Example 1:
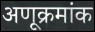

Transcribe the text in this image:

अणूक्रमांक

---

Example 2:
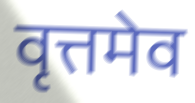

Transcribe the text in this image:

वृत्तमेव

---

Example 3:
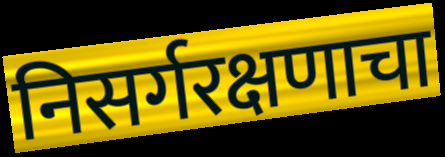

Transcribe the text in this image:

निसर्गरक्षणाचा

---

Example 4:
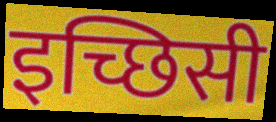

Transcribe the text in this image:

इच्छिसी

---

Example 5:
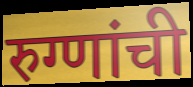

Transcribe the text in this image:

रुग्णांची